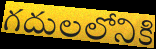
గదులలోనికి